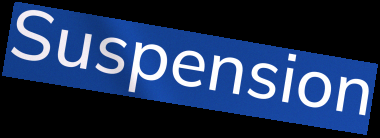
Suspension